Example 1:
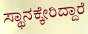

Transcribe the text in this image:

ಸ್ಥಾನಕ್ಕೇರಿದ್ದಾರೆ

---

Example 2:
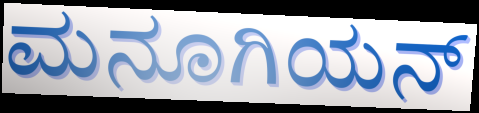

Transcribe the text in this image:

ಮನೂಗಿಯನ್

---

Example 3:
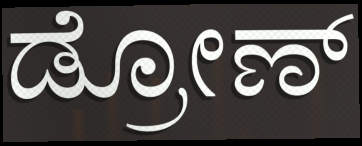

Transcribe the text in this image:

ಡ್ರೋಣ್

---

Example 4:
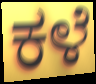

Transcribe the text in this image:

ಕಳೆ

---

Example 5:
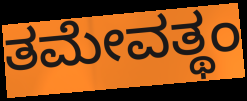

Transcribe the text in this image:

ತಮೇವತ್ಥಂ